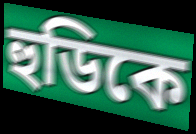
হুডিকে